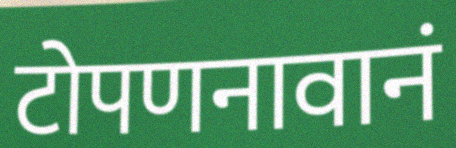
टोपणनावानं